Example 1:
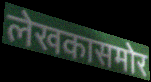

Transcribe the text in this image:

लेखकासमोर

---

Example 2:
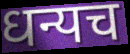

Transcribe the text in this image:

धन्यच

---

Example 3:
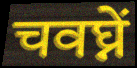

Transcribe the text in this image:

चवघ्नें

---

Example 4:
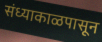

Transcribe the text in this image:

संध्याकाळपासून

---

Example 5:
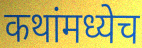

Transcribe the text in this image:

कथांमध्येच